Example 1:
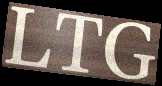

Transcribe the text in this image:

LTG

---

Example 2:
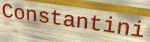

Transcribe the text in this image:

Constantini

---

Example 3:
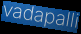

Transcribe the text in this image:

vadapalli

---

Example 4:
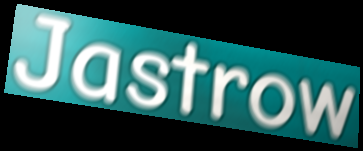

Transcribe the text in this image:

Jastrow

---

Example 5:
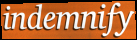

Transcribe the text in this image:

indemnify